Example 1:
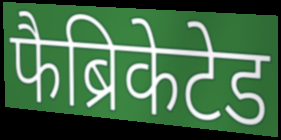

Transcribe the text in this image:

फैब्रिकेटेड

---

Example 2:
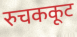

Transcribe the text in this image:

रुचककूट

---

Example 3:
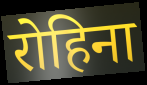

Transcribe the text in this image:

रोहिना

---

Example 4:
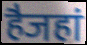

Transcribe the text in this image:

हैजहां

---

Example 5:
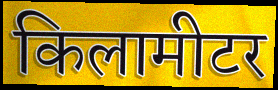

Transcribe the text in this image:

किलामीटर